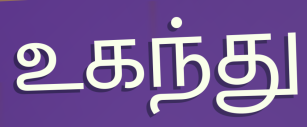
உகந்து